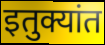
इतुक्यांत